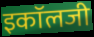
इकॉलजी